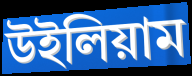
উইলিয়াম